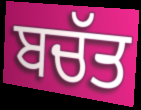
ਬਚੱਤ